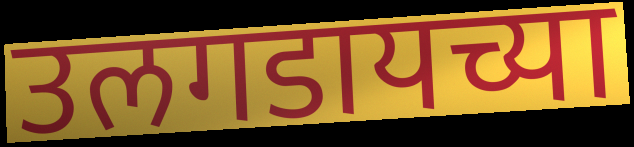
उलगडायच्या